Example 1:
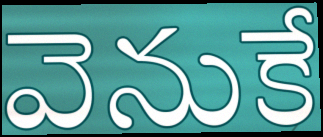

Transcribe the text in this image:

వెనుకే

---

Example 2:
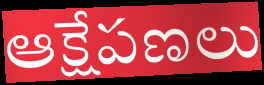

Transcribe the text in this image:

ఆక్షేపణలు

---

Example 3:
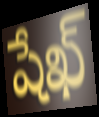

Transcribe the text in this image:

షేఖ్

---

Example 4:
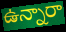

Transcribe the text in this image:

ఉన్నారా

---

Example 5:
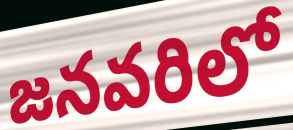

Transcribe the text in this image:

జనవరిలో